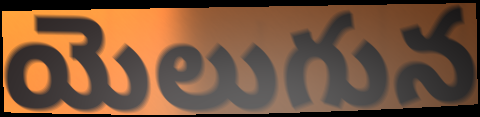
యెలుగున